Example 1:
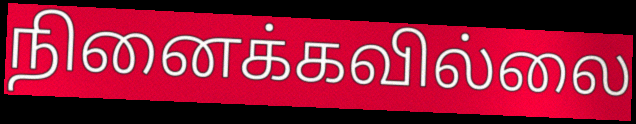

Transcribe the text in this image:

நினைக்கவில்லை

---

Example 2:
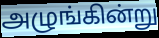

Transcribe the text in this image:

அழுங்கின்று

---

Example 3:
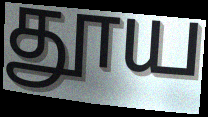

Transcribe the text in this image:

தூய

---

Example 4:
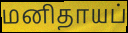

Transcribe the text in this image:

மனிதாயப்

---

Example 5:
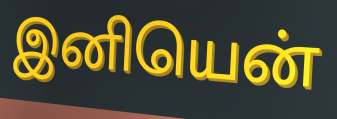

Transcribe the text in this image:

இனியென்